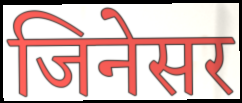
जिनेसर